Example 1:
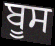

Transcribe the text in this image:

ਬੂਸ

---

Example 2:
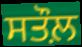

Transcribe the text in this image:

ਸਤੌਲ਼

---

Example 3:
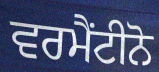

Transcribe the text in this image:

ਵਰਮੈਂਟੀਨੋ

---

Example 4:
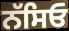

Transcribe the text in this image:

ਨੱਸਿਓ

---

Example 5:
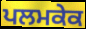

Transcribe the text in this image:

ਪਲਮਕੇਕ